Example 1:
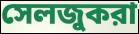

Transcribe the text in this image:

সেলজুকরা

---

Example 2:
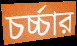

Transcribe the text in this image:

চর্চ্চার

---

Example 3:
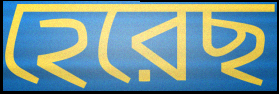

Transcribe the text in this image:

হেরেছ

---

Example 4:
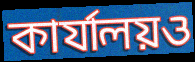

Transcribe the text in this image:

কার্যালয়ও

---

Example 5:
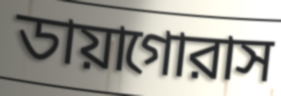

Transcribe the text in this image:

ডায়াগোরাস